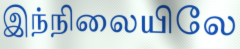
இந்நிலையிலே